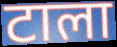
टाला